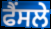
ਫੈਂਸਲੇ